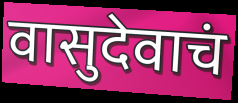
वासुदेवाचं